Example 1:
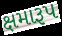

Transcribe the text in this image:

ક્ષમારૂપ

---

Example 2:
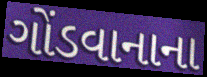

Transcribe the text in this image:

ગોંડવાનાના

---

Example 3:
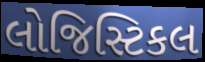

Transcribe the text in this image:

લોજિસ્ટિકલ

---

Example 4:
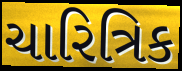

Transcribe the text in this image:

ચારિત્રિક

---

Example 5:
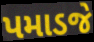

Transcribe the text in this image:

પમાડજે